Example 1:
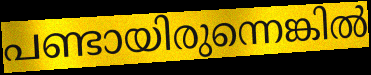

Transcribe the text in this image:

പണ്ടായിരുന്നെങ്കിൽ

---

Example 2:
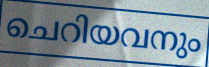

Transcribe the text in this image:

ചെറിയവനും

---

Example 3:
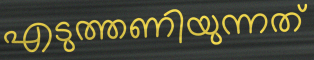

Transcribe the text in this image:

എടുത്തണിയുന്നത്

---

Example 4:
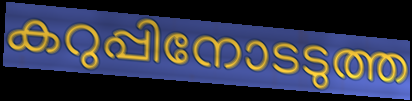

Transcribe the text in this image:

കറുപ്പിനോടടുത്ത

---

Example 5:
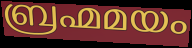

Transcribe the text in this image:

ബ്രഹ്മമയം